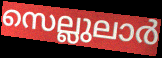
സെല്ലുലാർ